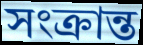
সংক্রান্ত